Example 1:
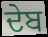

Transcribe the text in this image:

ਦੇਬ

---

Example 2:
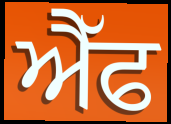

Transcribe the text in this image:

ਐੈੱਫ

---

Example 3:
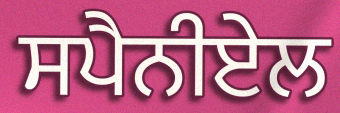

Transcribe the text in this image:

ਸਪੈਨੀਏਲ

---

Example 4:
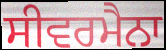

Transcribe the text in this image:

ਸੀਵਰਮੈਨਾ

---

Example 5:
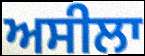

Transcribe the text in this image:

ਅਸੀਲਾ